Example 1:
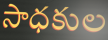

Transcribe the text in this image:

సాధకుల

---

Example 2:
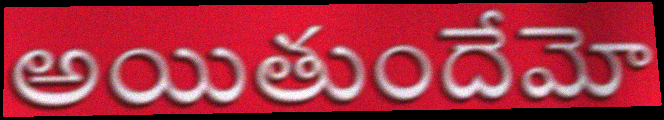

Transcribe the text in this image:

అయితుందేమో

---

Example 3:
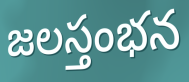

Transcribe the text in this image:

జలస్తంభన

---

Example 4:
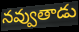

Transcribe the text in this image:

నవ్వుతాడు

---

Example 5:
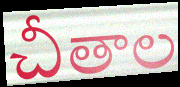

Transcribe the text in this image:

చీతాల